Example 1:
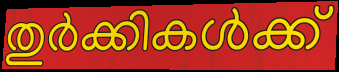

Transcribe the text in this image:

തുർക്കികൾക്ക്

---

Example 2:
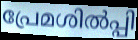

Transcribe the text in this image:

പ്രേമശിൽപ്പി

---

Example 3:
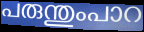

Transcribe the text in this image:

പരുന്തുംപാറ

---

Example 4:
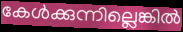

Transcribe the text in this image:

കേൾക്കുന്നില്ലെങ്കിൽ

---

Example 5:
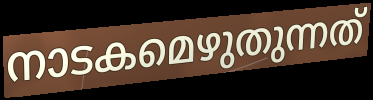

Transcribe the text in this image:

നാടകമെഴുതുന്നത്